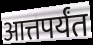
आत्तपर्यंत